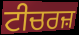
ਟੀਚਰਜ਼